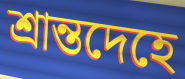
শ্রান্তদেহে